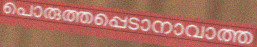
പൊരുത്തപ്പെടാനാവാത്ത